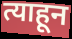
त्याहून